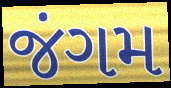
જંગમ